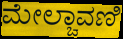
ಮೇಲ್ಚಾವಣಿ